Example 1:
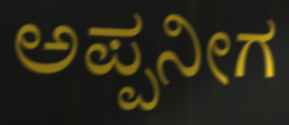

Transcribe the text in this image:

ಅಪ್ಪನೀಗ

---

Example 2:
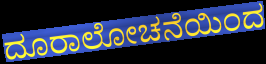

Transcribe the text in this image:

ದೂರಾಲೋಚನೆಯಿಂದ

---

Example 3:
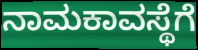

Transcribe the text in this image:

ನಾಮಕಾವಸ್ಥೆಗೆ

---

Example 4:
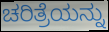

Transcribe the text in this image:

ಚರಿತ್ರೆಯನ್ನು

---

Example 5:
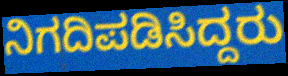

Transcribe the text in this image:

ನಿಗದಿಪಡಿಸಿದ್ದರು